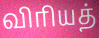
விரியத்